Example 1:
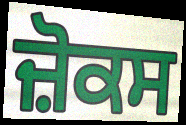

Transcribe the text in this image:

ਜ਼ੋਕਸ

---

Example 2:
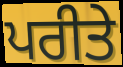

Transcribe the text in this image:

ਪਰੀਤੇ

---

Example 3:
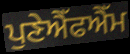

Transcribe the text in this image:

ਪੁਣੇਐੱਫਐੱਮ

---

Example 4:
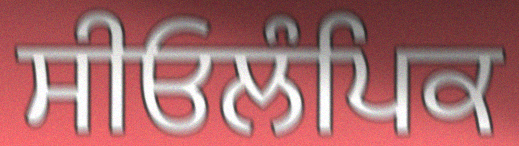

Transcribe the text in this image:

ਸੀਓਲੰਪਿਕ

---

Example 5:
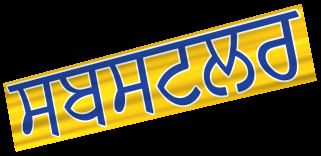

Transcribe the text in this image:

ਸਬਸਟਲਰ